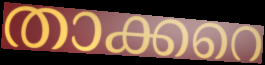
താക്കറെ